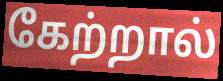
கேற்றால்